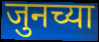
जुनच्या